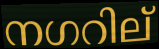
നഗറില്